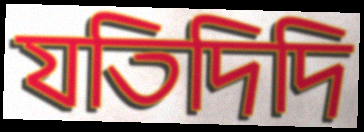
যতিদিদি